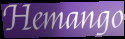
Hemango